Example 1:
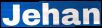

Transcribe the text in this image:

Jehan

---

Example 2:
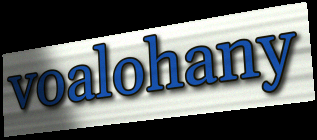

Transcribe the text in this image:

voalohany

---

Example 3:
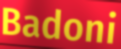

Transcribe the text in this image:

Badoni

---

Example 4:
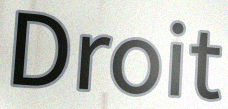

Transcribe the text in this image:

Droit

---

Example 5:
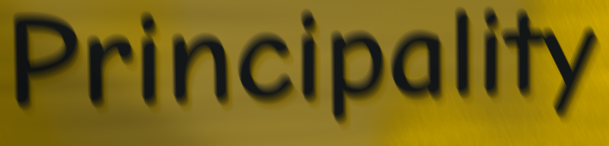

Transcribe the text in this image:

Principality